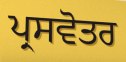
ਪ੍ਰਸਵੋਤਰ